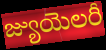
జ్యుయెలరీ